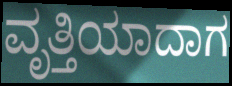
ವೃತ್ತಿಯಾದಾಗ